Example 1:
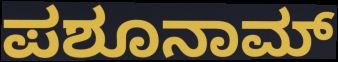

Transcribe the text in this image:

ಪಶೂನಾಮ್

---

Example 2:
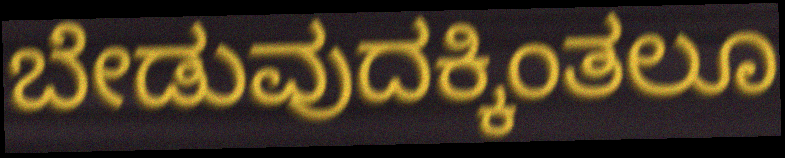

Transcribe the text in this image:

ಬೇಡುವುದಕ್ಕಿಂತಲೂ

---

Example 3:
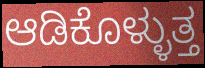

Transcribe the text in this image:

ಆಡಿಕೊಳ್ಳುತ್ತ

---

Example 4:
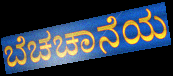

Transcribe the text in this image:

ಬೆಚಚಾನೆಯ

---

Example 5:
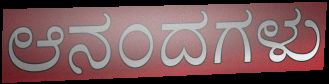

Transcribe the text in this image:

ಆನಂದಗಳು